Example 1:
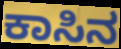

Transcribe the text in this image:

ಕಾಸಿನ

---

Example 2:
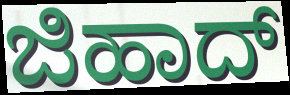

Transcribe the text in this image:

ಜಿಹಾದ್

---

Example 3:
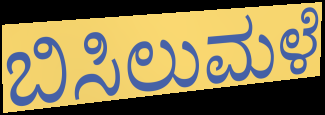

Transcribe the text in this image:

ಬಿಸಿಲುಮಳೆ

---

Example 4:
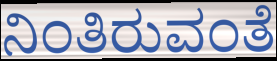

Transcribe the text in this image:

ನಿಂತಿರುವಂತೆ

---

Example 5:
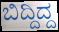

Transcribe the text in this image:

ಬಿದ್ದಿದ್ದ